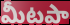
మీటపా